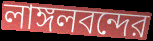
লাঙ্গলবন্দের